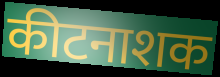
कीटनाशक